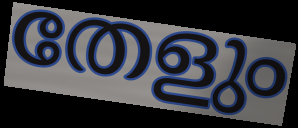
തേളും